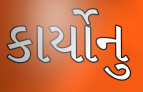
કાર્યોનુ